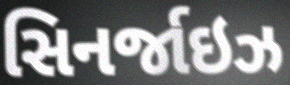
સિનર્જાઇઝ